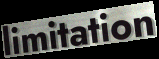
limitation